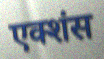
एक्शंस